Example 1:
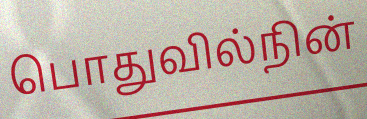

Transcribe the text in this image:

பொதுவில்நின்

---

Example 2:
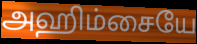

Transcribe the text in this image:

அஹிம்சையே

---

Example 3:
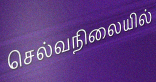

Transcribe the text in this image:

செல்வநிலையில்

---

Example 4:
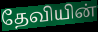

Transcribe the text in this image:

தேவியின்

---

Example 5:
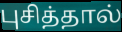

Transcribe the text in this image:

புசித்தால்